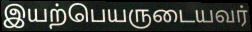
இயற்பெயருடையவர்